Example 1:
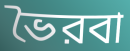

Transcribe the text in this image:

ভৈরবা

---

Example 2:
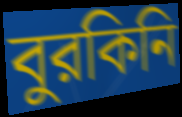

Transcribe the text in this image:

বুরকিনি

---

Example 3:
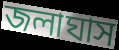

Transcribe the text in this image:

জলাঘাস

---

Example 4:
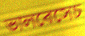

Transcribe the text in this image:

ভালবেসেচ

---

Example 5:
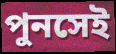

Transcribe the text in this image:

পুনসেই